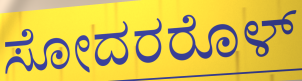
ಸೋದರರೊಳ್